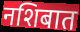
नशिबात